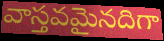
వాస్తవమైనదిగా